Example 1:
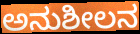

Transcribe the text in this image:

ಅನುಶೀಲನ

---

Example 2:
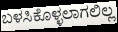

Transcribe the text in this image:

ಬಳಸಿಕೊಳ್ಳಲಾಗಲಿಲ್ಲ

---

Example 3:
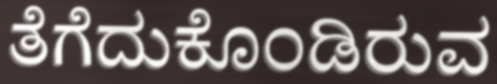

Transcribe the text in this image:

ತೆಗೆದುಕೊಂಡಿರುವ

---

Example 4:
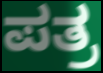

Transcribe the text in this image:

ಪತ್ರ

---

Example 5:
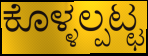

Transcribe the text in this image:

ಕೊಳ್ಳಲ್ಪಟ್ಟ